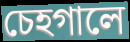
চেহগালে